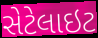
સેટેલાઇટ